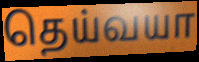
தெய்வயா